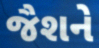
જૈશને